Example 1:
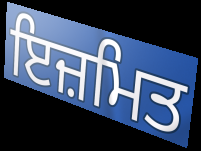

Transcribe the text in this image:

ਇਜ਼ਮਿਤ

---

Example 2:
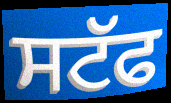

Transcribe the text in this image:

ਸਟੱਫ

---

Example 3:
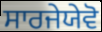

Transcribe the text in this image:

ਸਾਰਜੇਯੇਵੋ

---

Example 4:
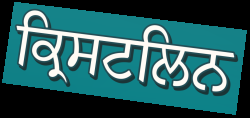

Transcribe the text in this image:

ਕ੍ਰਿਸਟਲਿਨ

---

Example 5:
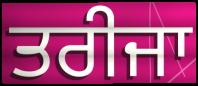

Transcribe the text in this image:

ਤਰੀਜਾ